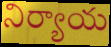
నిర్యాయ